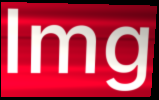
Img